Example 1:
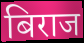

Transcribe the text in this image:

बिराज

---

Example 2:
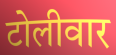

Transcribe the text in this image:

टोलीवार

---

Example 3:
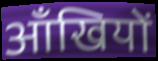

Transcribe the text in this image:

आँखियों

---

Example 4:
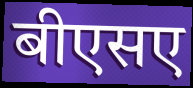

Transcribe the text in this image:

बीएसए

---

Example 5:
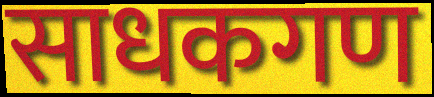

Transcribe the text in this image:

साधकगण